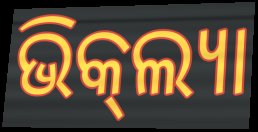
ଭିକ୍‌ଲ୍ୟା